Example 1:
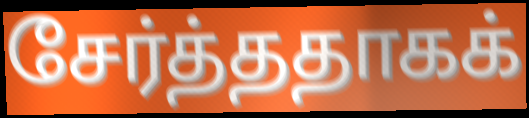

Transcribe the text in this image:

சேர்த்ததாகக்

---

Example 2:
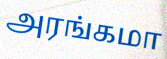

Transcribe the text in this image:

அரங்கமா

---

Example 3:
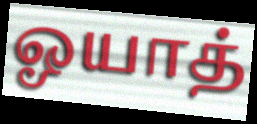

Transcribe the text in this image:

ஓயாத்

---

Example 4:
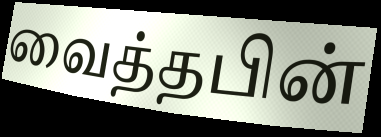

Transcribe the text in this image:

வைத்தபின்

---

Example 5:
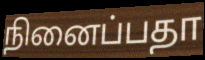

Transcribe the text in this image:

நினைப்பதா